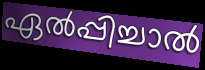
ഏൽപ്പിച്ചാൽ